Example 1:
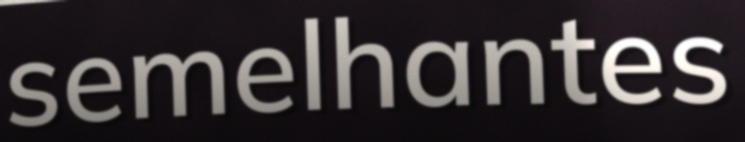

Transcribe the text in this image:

semelhantes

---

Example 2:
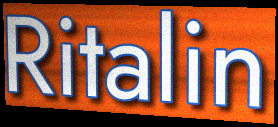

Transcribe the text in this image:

Ritalin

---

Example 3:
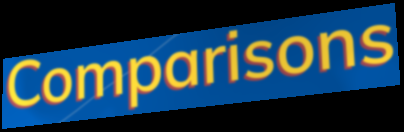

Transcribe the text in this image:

Comparisons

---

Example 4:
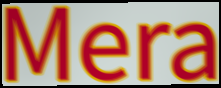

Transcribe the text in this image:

Mera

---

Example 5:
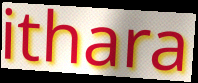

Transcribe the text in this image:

ithara